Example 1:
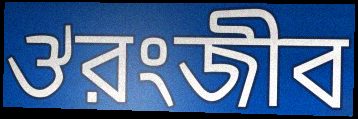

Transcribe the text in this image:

ঔরংজীব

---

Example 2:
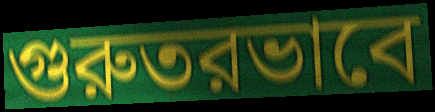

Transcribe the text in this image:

গুরুতরভাবে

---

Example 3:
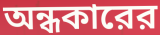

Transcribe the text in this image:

অন্ধকারের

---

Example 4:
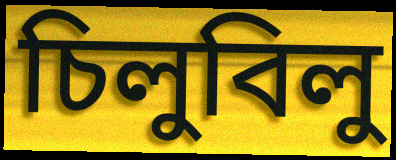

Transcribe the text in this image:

চিলুবিলু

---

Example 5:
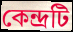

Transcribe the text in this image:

কেন্দ্রটি